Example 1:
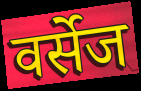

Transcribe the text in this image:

वर्सेज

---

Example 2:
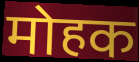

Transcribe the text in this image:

मोहक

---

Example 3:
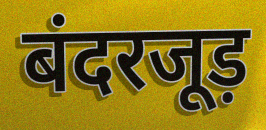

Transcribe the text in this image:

बंदरजूड़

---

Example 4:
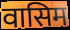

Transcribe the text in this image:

वासिम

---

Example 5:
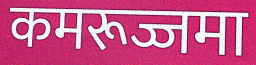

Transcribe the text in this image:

कमरूज्जमा